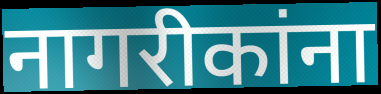
नागरीकांना